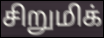
சிறுமிக்